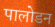
पालोडन